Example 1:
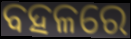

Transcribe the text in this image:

ବହଳରେ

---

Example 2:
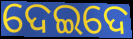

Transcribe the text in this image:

ଦେଇଦେ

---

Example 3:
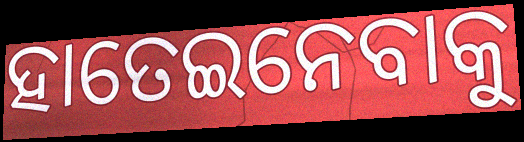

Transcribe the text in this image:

ହାତେଇନେବାକୁ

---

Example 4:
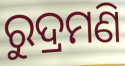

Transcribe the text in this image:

ରୁଦ୍ରମଣି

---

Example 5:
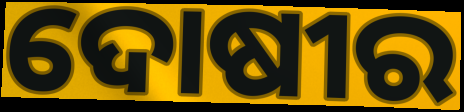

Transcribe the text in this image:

ଦୋଷୀର